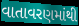
વાતાવરણમાંથી